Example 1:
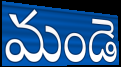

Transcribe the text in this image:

మండె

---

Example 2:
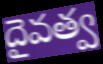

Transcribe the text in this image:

దైవత్వ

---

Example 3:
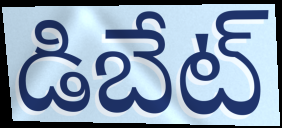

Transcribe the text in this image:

డిబేట్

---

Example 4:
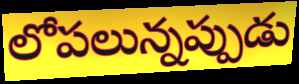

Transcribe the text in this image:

లోపలున్నప్పుడు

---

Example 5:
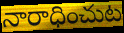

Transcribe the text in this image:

నారాధించుట